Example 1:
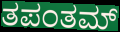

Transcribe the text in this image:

ತಪಂತಮ್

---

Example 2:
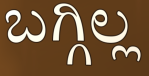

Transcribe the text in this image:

ಬಗ್ಗಿಲ್ಲ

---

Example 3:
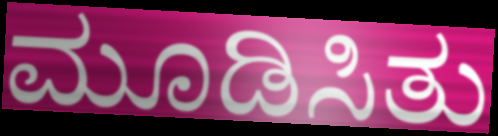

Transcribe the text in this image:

ಮೂಡಿಸಿತು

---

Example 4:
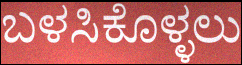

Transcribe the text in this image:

ಬಳಸಿಕೊಳ್ಳಲು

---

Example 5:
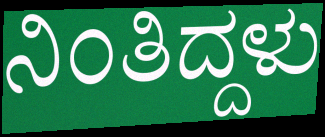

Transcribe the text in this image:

ನಿಂತಿದ್ದಳು